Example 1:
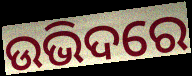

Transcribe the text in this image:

ଉଭିଦରେ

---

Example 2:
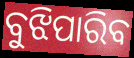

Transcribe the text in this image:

ବୁଝିପାରିବ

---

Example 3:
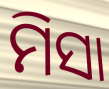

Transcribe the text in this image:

ମିସା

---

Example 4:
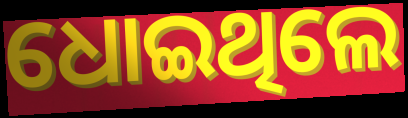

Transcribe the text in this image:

ଧୋଇଥିଲେ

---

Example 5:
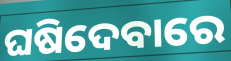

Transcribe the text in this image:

ଘଷିଦେବାରେ